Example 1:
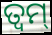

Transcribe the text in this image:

ତ୍ୱମ୍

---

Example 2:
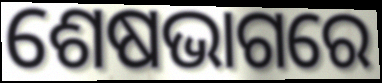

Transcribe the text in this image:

ଶେଷଭାଗରେ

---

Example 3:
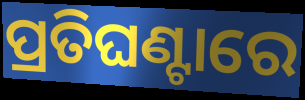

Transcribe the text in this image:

ପ୍ରତିଘଣ୍ଟାରେ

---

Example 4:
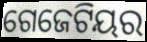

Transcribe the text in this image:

ଗେଜେଟିୟର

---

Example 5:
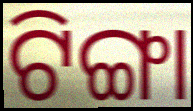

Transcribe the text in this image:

ଟିଙ୍ଗା